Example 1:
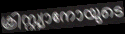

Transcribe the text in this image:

ക്രിസ്റ്റ്യാനോയുടെ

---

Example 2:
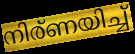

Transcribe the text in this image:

നിര്ണയിച്ച്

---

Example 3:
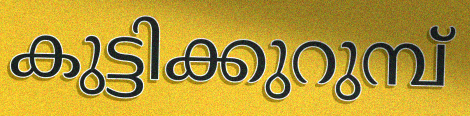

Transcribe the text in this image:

കുട്ടിക്കുറുമ്പ്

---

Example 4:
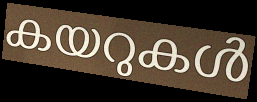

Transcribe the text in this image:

കയറുകൾ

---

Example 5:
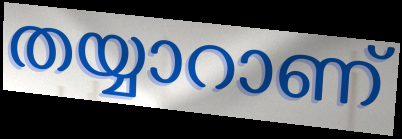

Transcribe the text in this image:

തയ്യാറാണ്